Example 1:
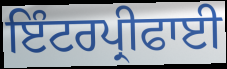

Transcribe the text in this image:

ਇੰਟਰਪ੍ਰੀਫਾਈ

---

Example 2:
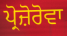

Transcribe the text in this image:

ਪ੍ਰੋਜ਼ੋਰੋਵਾ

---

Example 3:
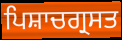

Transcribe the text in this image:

ਪਿਸ਼ਾਚਗ੍ਰਸਤ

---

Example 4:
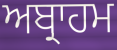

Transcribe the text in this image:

ਅਬ੍ਰਾਹਮ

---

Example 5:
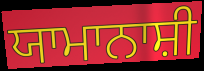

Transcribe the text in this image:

ਯਾਮਾਨਾਸ਼ੀ